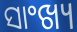
ସାଂଖ୍ଯ